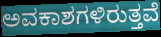
ಅವಕಾಶಗಳಿರುತ್ತವೆ